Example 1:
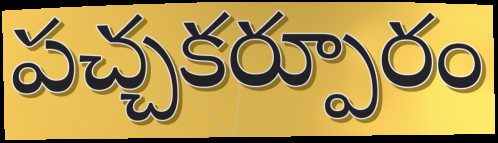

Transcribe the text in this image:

పచ్చకర్పూరం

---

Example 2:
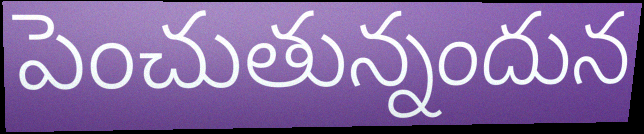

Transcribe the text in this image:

పెంచుతున్నందున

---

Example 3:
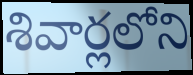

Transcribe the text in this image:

శివార్లలోని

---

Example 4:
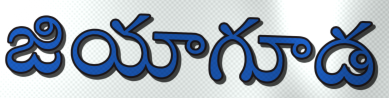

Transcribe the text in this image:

జియాగూడ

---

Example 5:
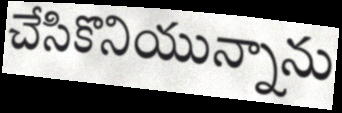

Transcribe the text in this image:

చేసికొనియున్నాను